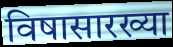
विषासारख्या